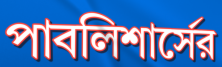
পাবলিশার্সের